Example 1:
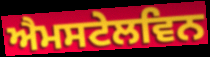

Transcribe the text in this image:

ਐਮਸਟੇਲਵਿਨ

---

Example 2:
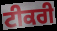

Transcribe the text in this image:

ਟੀਕਰੀ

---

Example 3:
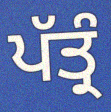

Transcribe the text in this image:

ਪੱਤ੍ਰੰ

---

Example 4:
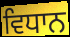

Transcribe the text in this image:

ਵਿਧਾਨ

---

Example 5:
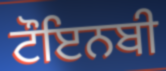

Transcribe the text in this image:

ਟੌਇਨਬੀ